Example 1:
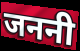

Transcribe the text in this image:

जननी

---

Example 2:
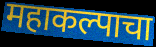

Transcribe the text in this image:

महाकल्पाचा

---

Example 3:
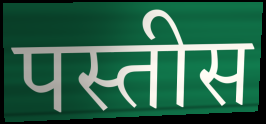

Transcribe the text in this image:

पस्तीस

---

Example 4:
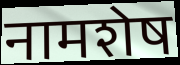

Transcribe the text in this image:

नामशेष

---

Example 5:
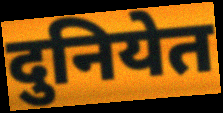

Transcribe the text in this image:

दुनियेत